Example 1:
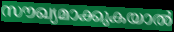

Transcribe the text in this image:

സൗഖ്യമാക്കുകയാൽ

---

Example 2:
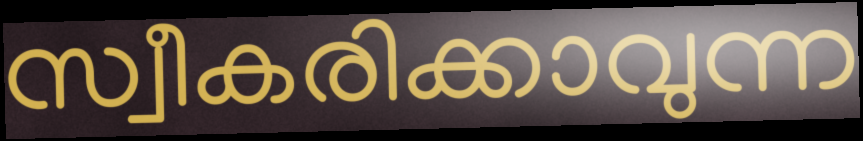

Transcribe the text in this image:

സ്വീകരിക്കാവുന്ന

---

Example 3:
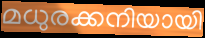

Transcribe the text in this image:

മധുരക്കനിയായി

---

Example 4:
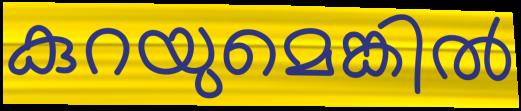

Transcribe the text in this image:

കുറയുമെങ്കിൽ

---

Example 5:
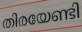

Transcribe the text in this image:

തിരയേണ്ടി